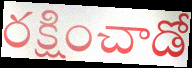
రక్షించాడో